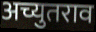
अच्युतराव